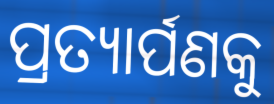
ପ୍ରତ୍ୟାର୍ପଣକୁ